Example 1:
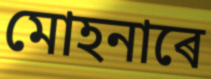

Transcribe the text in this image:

মোহনাৰে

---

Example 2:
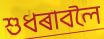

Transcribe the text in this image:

শুধৰাবলৈ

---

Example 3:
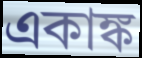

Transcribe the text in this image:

একাঙ্ক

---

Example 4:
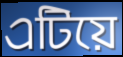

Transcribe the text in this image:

এটিয়ে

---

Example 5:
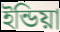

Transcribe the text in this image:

ইন্ডিয়া